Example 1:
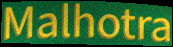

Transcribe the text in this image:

Malhotra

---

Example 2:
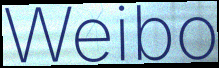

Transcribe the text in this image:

Weibo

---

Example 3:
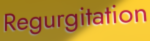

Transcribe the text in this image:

Regurgitation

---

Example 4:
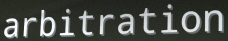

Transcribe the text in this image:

arbitration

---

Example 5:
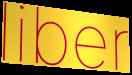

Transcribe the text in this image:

liber